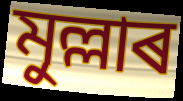
মুল্লাৰ